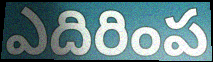
ఎదిరింప